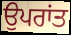
ਉਪਰਾਂਤ